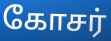
கோசர்